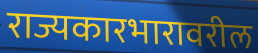
राज्यकारभारावरील